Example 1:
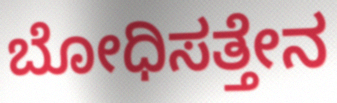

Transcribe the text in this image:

ಬೋಧಿಸತ್ತೇನ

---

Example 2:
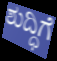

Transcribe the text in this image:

ಶುದ್ಧಿಗೆ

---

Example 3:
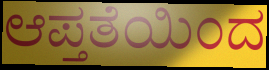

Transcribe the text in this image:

ಆಪ್ತತೆಯಿಂದ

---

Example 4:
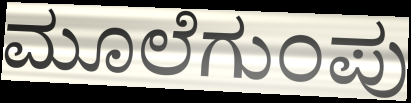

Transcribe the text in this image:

ಮೂಲೆಗುಂಪು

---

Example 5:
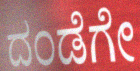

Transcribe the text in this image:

ದಂಡೆಗೇ